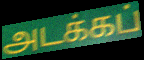
அடக்கப்